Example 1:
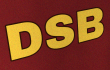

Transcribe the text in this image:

DSB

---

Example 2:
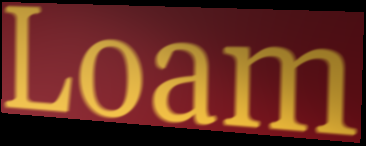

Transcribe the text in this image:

Loam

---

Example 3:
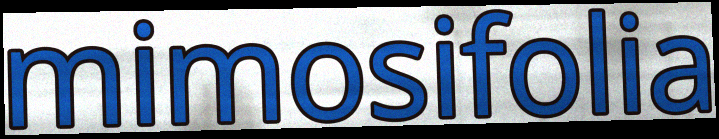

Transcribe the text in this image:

mimosifolia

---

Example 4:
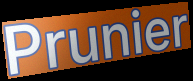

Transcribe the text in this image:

Prunier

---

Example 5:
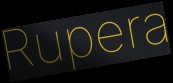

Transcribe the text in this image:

Rupera